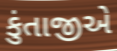
કુંતાજીએ